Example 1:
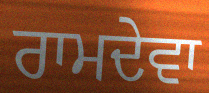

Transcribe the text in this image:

ਰਾਮਦੇਵਾ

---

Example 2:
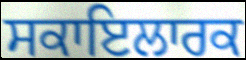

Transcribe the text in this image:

ਸਕਾਇਲਾਰਕ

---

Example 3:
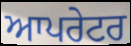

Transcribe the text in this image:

ਆਪਰੇਟਰ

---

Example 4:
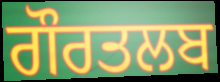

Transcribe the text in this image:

ਗੌਰਤਲਬ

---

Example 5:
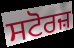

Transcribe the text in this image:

ਸਟੋਰਜ਼